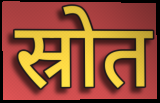
स्रोत